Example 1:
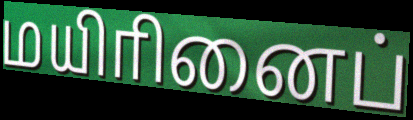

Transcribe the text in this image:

மயிரினைப்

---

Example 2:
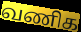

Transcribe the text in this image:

வணிக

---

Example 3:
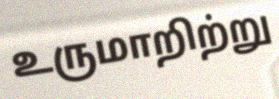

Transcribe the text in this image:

உருமாறிற்று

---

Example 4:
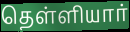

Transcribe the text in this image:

தெள்ளியார்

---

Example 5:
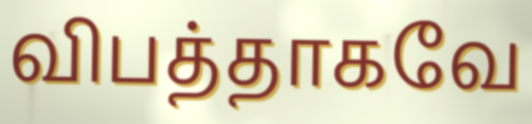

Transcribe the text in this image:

விபத்தாகவே